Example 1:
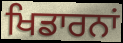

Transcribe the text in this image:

ਖਿਡਾਰਨਾਂ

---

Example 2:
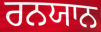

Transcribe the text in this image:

ਰਨਯਾਨ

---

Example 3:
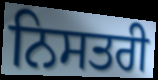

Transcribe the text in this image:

ਨਿਸਤਰੀ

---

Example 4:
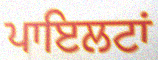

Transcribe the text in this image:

ਪਾਇਲਟਾਂ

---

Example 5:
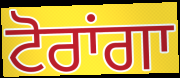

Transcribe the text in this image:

ਟੋਰਾਂਗਾ